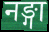
नङ्गा